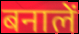
बनालें